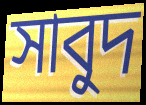
সাবুদ